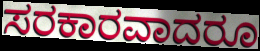
ಸರಕಾರವಾದರೂ